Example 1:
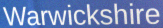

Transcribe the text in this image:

Warwickshire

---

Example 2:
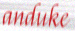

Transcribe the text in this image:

anduke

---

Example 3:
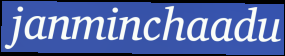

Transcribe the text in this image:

janminchaadu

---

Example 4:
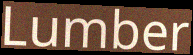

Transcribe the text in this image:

Lumber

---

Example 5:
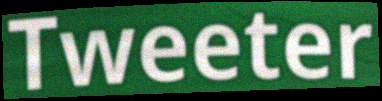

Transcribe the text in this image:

Tweeter